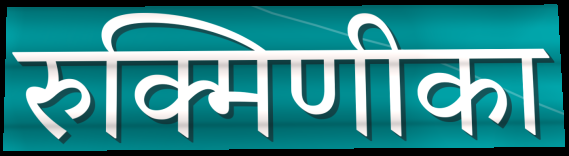
रुक्मिणीका